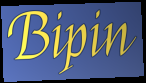
Bipin